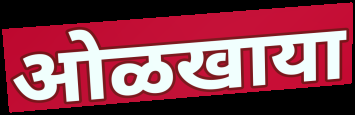
ओळखाया